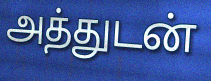
அத்துடன்